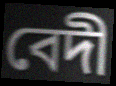
বেদী